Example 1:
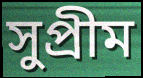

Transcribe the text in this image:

সুপ্ৰীম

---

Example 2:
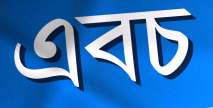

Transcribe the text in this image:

এবচ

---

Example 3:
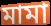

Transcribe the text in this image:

মামা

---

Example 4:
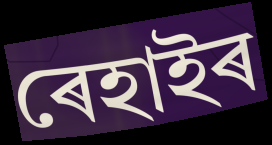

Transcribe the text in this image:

ৰেহাইৰ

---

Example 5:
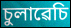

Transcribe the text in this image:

চুলাৱেচি